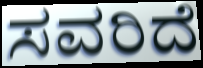
ಸವರಿದೆ